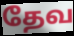
தேவ